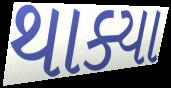
થાક્યા